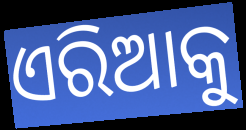
ଏରିଆକୁ